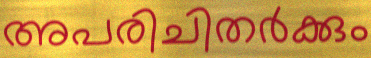
അപരിചിതർക്കും